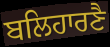
ਬਲਿਹਾਰਣੈ